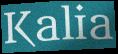
Kalia